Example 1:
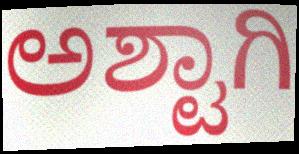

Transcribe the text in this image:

ಅಶ್ಟಾಗಿ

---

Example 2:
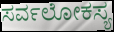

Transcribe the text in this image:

ಸರ್ವಲೋಕಸ್ಯ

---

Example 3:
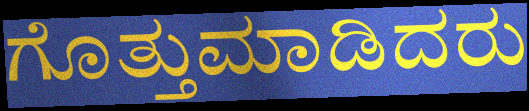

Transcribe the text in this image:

ಗೊತ್ತುಮಾಡಿದರು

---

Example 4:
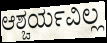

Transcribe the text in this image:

ಆಶ್ಚರ್ಯವಿಲ್ಲ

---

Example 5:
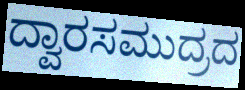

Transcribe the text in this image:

ದ್ವಾರಸಮುದ್ರದ